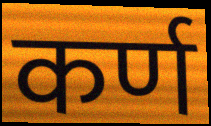
कर्ण